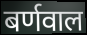
बर्णवाल